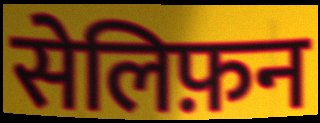
सेलिफ़न